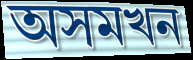
অসমখন